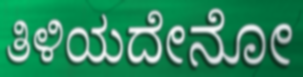
ತಿಳಿಯದೇನೋ